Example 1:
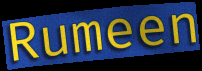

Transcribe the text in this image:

Rumeen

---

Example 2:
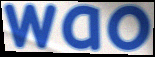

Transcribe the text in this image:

wao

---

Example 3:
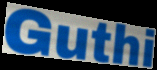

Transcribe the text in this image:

Guthi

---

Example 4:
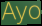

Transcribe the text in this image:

Ayo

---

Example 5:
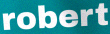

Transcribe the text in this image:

robert